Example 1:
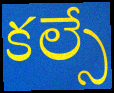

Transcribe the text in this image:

కల్సే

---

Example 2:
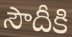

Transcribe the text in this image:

సౌదీకి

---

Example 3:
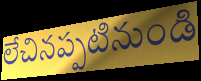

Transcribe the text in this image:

లేచినప్పటినుండి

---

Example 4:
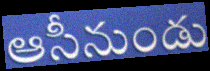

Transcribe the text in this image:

ఆసీనుండు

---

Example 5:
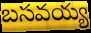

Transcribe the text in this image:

బసవయ్య